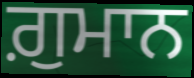
ਗ਼ੁਮਾਨ